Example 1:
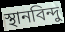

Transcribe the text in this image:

স্থানবিন্দু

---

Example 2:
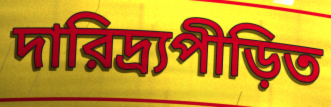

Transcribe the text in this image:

দারিদ্র্যপীড়িত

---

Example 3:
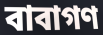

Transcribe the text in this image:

বাবাগণ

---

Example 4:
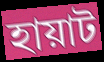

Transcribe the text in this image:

হায়াট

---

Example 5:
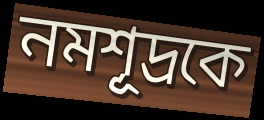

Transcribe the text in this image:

নমশূদ্রকে